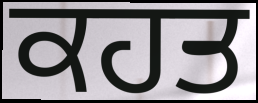
ਕਹਤ